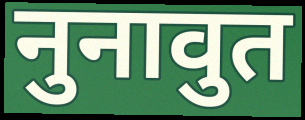
नुनावुत